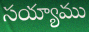
సయ్యాము